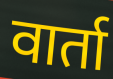
वार्ता